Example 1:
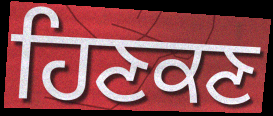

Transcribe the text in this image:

ਹਿਣਕਣ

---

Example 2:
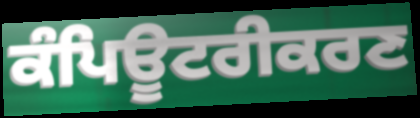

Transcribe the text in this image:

ਕੰਪਿਊਟਰੀਕਰਣ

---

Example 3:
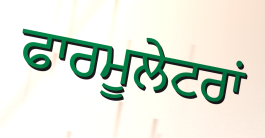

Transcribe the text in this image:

ਫਾਰਮੂਲੇਟਰਾਂ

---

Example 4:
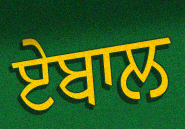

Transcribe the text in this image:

ਏਬਾਲ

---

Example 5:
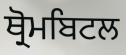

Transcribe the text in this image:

ਥ੍ਰੋਮਬਿਟਲ